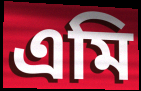
এমি